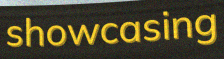
showcasing